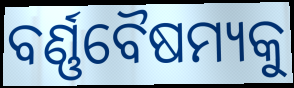
ବର୍ଣ୍ଣବୈଷମ୍ୟକୁ